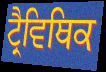
ਟ੍ਰੈਵਿਥਿਕ